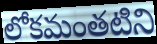
లోకమంతటిని